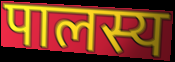
पालस्य